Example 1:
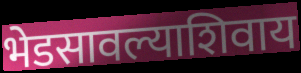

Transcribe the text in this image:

भेडसावल्याशिवाय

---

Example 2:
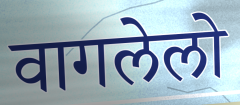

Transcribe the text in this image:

वागलेलो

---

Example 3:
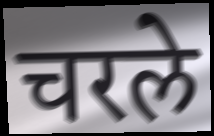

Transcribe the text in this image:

चरले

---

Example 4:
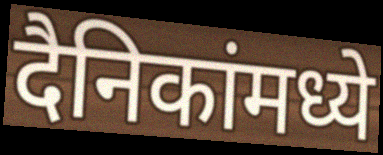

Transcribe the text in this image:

दैनिकांमध्ये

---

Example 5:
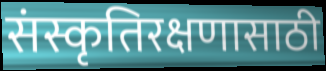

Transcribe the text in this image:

संस्कृतिरक्षणासाठी